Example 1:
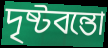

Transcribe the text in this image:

দৃষ্টবন্তো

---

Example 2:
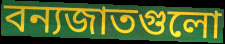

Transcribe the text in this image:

বন্যজাতগুলো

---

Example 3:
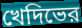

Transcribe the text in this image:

খেদিভের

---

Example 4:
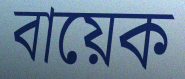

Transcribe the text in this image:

বায়েক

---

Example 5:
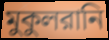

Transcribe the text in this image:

মুকুলরানি